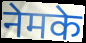
नेमके